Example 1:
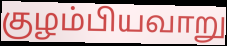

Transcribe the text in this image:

குழம்பியவாறு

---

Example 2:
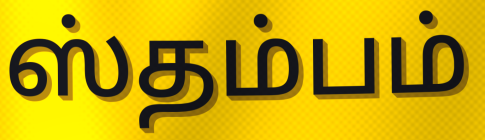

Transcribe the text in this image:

ஸ்தம்பம்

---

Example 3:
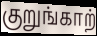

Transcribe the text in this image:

குறுங்காற்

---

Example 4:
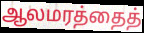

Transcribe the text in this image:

ஆலமரத்தைத்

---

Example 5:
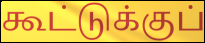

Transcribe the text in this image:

கூட்டுக்குப்